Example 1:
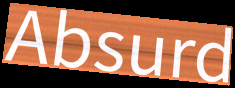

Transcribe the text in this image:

Absurd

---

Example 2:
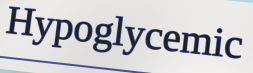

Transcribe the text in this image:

Hypoglycemic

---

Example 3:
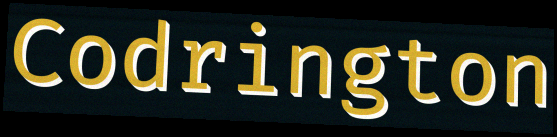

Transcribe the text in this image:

Codrington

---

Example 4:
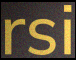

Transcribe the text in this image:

rsi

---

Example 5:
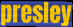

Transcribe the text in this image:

presley